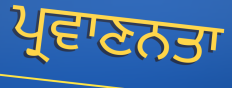
ਪ੍ਰਵਾਣਨਤਾ